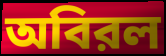
অবিরল